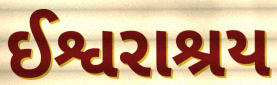
ઈશ્વરાશ્રય